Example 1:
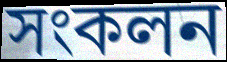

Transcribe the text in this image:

সংকলন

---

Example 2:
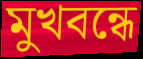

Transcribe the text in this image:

মুখবন্ধে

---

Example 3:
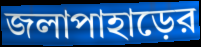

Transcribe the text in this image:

জলাপাহাড়ের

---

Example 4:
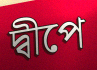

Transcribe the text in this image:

দ্বীপে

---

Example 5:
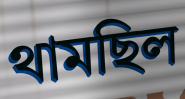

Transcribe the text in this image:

থামছিল